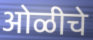
ओळीचे